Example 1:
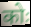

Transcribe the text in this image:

कोः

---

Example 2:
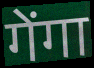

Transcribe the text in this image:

गेंगा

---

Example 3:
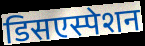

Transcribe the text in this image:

डिसएस्पेशन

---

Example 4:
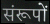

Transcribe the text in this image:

संरूपों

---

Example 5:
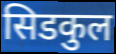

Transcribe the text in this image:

सिडकुल